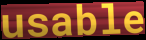
usable